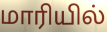
மாரியில்